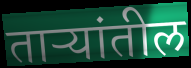
ताऱ्यांतील